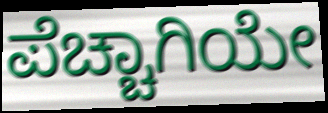
ಪೆಚ್ಚಾಗಿಯೇ